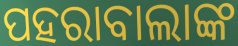
ପହରାବାଲାଙ୍କ